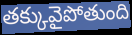
తక్కువైపోతుంది